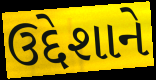
ઉદ્દેશાને